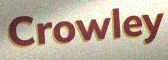
Crowley